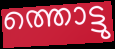
ത്തൊട്ടു